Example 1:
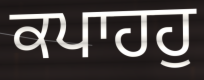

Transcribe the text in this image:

ਕਪਾਹਹੁ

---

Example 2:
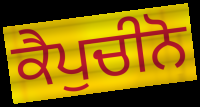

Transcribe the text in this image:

ਕੈਪੁਚੀਨੋ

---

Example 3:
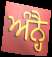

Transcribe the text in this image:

ਅੰਨ੍ਹੈ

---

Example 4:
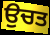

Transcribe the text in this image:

ਉਚਤ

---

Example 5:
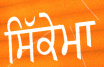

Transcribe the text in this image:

ਸਿੱਕੇਮਾ